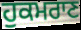
ਹੁਕਮਰਾਣ